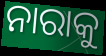
ନାରାକୁ